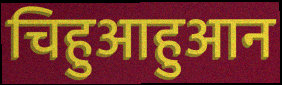
चिहुआहुआन